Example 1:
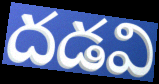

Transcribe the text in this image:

దడవి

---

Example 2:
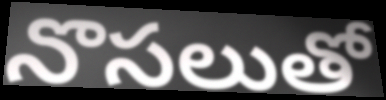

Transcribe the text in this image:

నొసలుతో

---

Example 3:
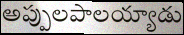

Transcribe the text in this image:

అప్పులపాలయ్యాడు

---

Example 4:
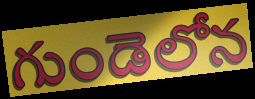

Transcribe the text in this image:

గుండెలోన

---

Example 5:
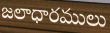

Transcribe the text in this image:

జలాధారములు